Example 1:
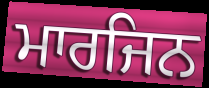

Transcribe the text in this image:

ਮਾਰਜਿਨ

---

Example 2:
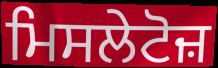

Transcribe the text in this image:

ਮਿਸਲੇਟੋਜ਼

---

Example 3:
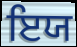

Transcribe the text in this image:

ਇਯ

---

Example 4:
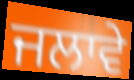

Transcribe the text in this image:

ਜਲਾਵੇ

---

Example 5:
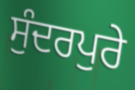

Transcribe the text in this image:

ਸੁੰਦਰਪੁਰੇ